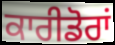
ਕਾਰੀਡੋਰਾਂ